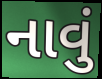
નાવું